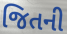
જિતની